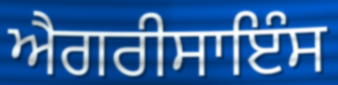
ਐਗਰੀਸਾਇੰਸ